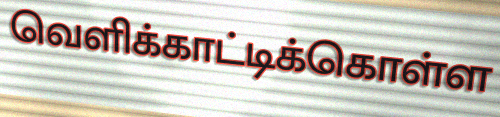
வெளிக்காட்டிக்கொள்ள